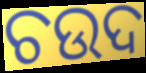
ଚଉଦ